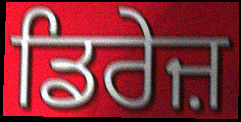
ਡਿਰੇਜ਼